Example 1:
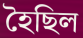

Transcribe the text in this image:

হৈছিল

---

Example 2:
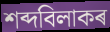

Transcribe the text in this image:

শব্দবিলাকৰ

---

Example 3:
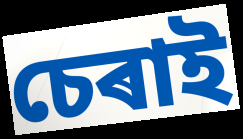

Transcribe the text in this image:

চেৰাই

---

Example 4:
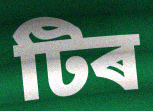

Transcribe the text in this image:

টিৰ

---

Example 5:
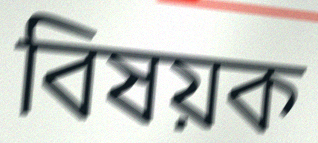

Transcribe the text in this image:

বিষয়ক